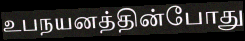
உபநயனத்தின்போது